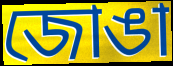
জোঙা